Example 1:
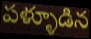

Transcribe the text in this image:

పళ్ళూడిన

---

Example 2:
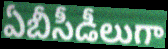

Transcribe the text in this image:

ఏబీసీడీలుగా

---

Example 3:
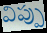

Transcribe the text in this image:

విప్పు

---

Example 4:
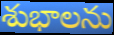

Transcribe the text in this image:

శుభాలను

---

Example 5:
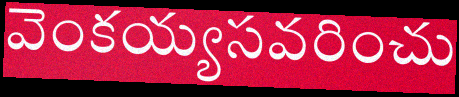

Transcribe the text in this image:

వెంకయ్యసవరించు